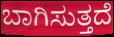
ಬಾಗಿಸುತ್ತದೆ